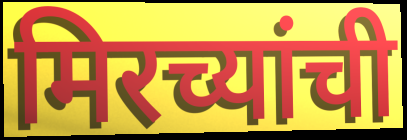
मिरच्यांची